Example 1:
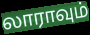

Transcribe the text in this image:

லாராவும்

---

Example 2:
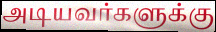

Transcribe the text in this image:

அடியவர்களுக்கு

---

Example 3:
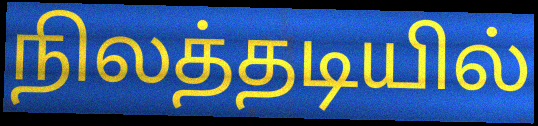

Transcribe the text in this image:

நிலத்தடியில்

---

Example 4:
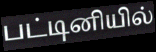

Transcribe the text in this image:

பட்டினியில்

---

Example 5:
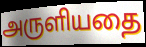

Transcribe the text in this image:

அருளியதை